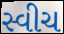
સ્વીચ